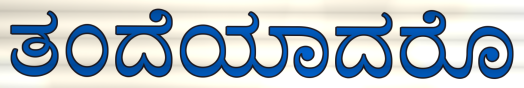
ತಂದೆಯಾದರೊ